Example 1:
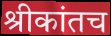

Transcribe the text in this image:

श्रीकांतच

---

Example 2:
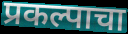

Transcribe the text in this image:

प्रकल्पाचा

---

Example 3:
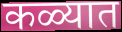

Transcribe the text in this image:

कळ्यात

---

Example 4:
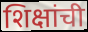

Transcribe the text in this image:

शिक्षांची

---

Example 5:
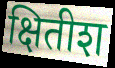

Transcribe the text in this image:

क्षितीश